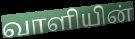
வாளியின்